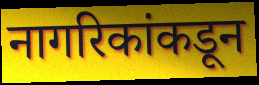
नागरिकांकडून